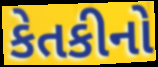
કેતકીનો